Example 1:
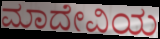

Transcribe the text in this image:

ಮಾದೇವಿಯ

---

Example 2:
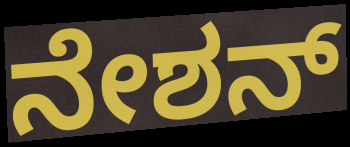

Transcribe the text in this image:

ನೇಶನ್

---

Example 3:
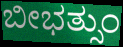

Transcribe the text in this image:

ಬೀಭತ್ಸುಂ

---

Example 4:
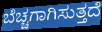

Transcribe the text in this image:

ಬೆಚ್ಚಗಾಗಿಸುತ್ತದೆ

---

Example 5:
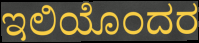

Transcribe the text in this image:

ಇಲಿಯೊಂದರ